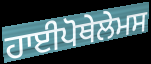
ਹਾਈਪੋਥੇਲੇਮਸ